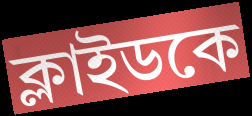
ক্লাইডকে